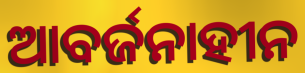
ଆବର୍ଜନାହୀନ